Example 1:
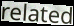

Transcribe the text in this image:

related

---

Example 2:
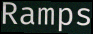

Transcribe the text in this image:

Ramps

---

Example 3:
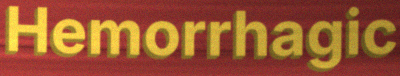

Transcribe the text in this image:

Hemorrhagic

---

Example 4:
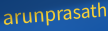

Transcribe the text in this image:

arunprasath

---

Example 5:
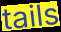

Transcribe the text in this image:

tails